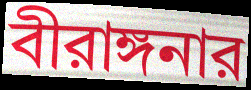
বীরাঙ্গনার